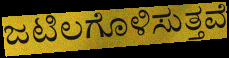
ಜಟಿಲಗೊಳಿಸುತ್ತವೆ